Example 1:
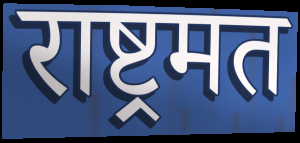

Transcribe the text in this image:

राष्ट्रमत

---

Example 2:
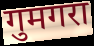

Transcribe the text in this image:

गुमगरा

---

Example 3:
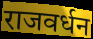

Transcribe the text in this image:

राजवर्धन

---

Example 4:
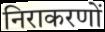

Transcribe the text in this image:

निराकरणों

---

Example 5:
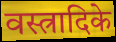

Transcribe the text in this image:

वस्त्रादिके